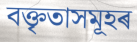
বক্তৃতাসমূহৰ